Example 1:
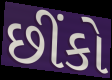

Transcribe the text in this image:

છીંકો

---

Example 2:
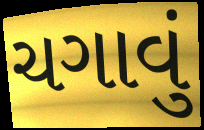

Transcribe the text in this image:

ચગાવું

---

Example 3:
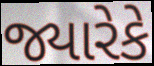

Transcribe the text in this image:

જ્યારેકે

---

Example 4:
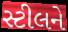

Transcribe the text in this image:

સ્ટીલને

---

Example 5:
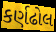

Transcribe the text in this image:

કર્ણઢોલ